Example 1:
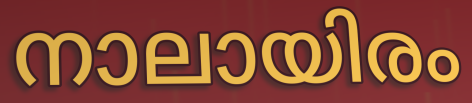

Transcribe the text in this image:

നാലായിരം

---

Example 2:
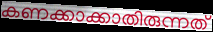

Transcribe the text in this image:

കണക്കാക്കാതിരുന്നത്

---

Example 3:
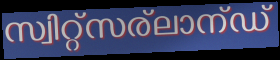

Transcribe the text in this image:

സ്വിറ്റ്സര്ലാന്ഡ്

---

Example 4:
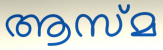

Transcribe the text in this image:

ആസ്മ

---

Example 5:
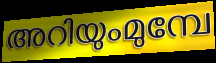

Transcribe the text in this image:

അറിയുംമുമ്പേ